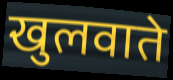
खुलवाते